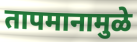
तापमानामुळे